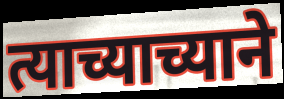
त्याच्याच्याने